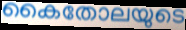
കൈതോലയുടെ